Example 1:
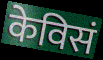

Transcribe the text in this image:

केविसं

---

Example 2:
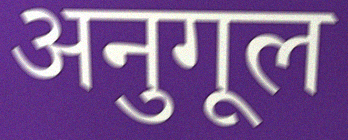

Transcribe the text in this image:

अनुगूल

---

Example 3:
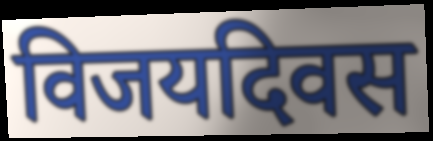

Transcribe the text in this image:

विजयदिवस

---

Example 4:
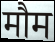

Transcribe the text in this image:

मौम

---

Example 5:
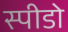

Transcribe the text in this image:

स्पीडो